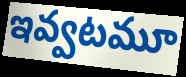
ఇవ్వటమూ